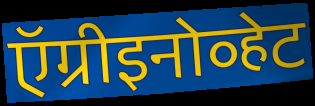
ऍग्रीइनोव्हेट